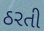
ઠરતી